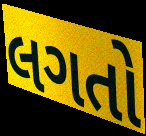
લગતો